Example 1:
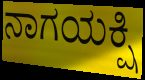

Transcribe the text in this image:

ನಾಗಯಕ್ಷಿ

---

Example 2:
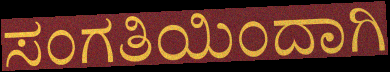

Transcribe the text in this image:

ಸಂಗತಿಯಿಂದಾಗಿ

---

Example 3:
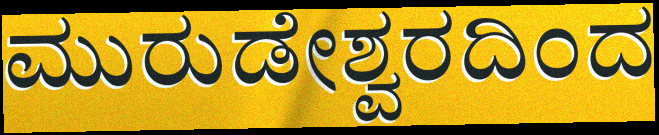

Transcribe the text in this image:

ಮುರುಡೇಶ್ವರದಿಂದ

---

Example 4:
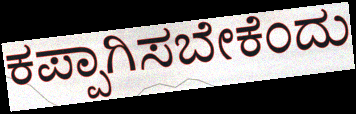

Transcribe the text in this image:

ಕಪ್ಪಾಗಿಸಬೇಕೆಂದು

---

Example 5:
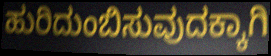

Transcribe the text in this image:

ಹುರಿದುಂಬಿಸುವುದಕ್ಕಾಗಿ